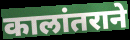
कालांतराने